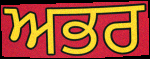
ਅਭਰ